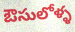
ఔసులోళ్ళ